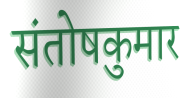
संतोषकुमार